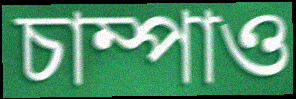
চাম্পাও